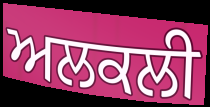
ਅਲਕਲੀ